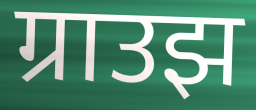
ग्राउझ